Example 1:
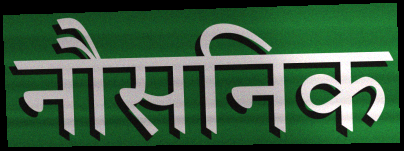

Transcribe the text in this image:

नौसनिक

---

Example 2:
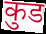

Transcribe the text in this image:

कुड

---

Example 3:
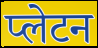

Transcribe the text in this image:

प्लेटन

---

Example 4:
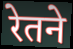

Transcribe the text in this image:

रेतने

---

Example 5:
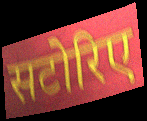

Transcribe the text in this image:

सटोरिए